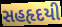
સહહૃદયી